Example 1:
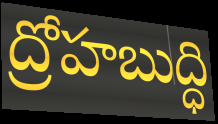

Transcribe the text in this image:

ద్రోహబుద్ధి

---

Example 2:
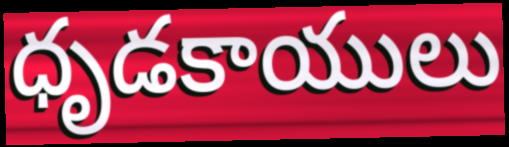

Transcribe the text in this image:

ధృడకాయులు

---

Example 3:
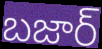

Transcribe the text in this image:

బజార్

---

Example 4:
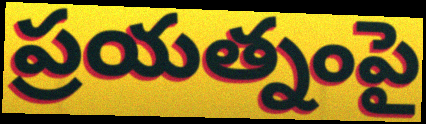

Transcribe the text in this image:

ప్రయత్నంపై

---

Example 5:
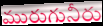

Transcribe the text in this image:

మురుగునీరు